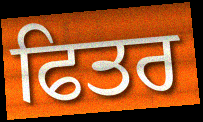
ਫਿਤਰ